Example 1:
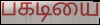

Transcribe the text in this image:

பகடியை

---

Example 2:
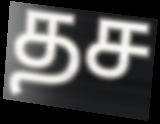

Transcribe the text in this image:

தச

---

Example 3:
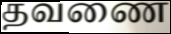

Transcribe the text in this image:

தவணை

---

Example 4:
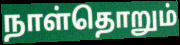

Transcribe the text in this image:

நாள்தொறும்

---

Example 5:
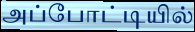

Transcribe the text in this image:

அப்போட்டியில்